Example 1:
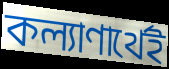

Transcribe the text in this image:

কল্যাণার্থেই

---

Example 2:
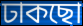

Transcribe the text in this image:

ঢাকছো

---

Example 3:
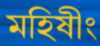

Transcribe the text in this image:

মহিষীং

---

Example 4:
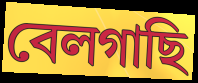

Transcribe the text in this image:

বেলগাছি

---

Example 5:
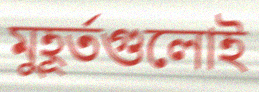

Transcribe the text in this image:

মুহূর্তগুলোই